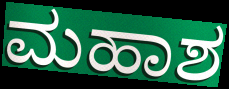
ಮಹಾಶ